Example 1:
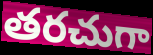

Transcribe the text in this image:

తరచుగా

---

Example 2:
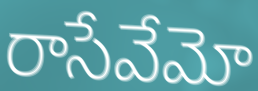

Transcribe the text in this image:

రాసేవేమో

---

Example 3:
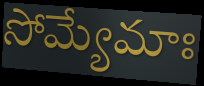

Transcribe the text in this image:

సోమ్యేమాః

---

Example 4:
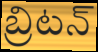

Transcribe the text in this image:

బ్రిటన్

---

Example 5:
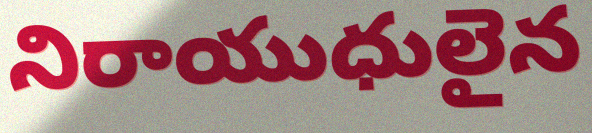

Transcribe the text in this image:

నిరాయుధులైన